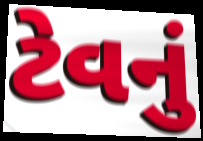
ટેવનું